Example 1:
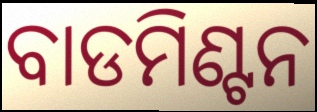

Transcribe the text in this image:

ବାଡମିଣ୍ଟନ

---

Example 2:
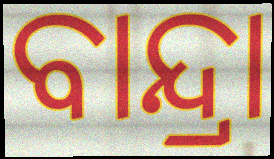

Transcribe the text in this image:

ବାନ୍ଦ୍ରା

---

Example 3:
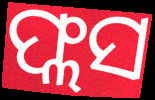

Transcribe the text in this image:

ଫ୍ଲସ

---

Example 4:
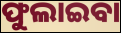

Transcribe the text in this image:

ଫୁଲାଇବା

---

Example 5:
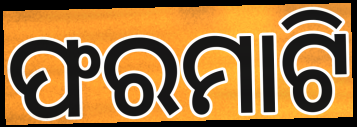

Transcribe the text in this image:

ଫରମାଟି